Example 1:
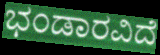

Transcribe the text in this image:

ಭಂಡಾರವಿದೆ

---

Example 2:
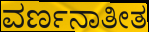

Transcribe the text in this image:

ವರ್ಣನಾತೀತ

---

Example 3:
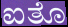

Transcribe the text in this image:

ಐತೊ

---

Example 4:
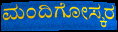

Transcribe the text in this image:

ಮಂದಿಗೋಸ್ಕರ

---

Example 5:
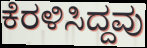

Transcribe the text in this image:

ಕೆರಳಿಸಿದ್ದವು